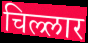
चिल्लार